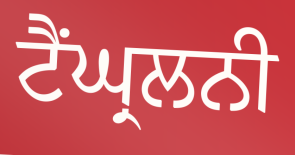
ਟੈਂਘ੍ਰਲਨੀ